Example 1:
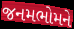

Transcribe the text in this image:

જનમભોમને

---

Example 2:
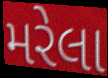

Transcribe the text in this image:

મરેલા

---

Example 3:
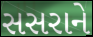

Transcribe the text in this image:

સસરાને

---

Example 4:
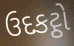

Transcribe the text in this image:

ઉદકટ્ઠો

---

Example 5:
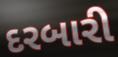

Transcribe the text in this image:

દરબારી